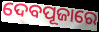
ଦେବପୂଜାରେ